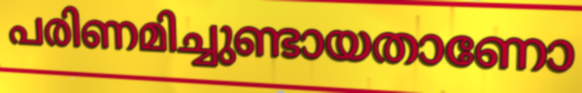
പരിണമിച്ചുണ്ടായതാണോ